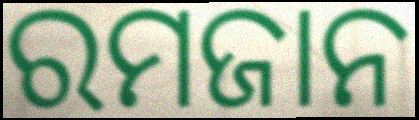
ରମଜାନ